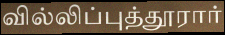
வில்லிப்புத்தூரார்